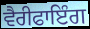
ਵੈਰੀਫਾਇੰਗ